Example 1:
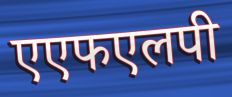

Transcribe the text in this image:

एएफएलपी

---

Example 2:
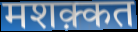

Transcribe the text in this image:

मशक़्कत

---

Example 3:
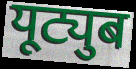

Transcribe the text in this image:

यूट्युब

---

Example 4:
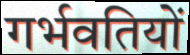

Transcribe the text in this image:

गर्भवतियों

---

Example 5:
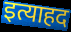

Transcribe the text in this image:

इत्याहद